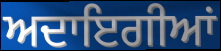
ਅਦਾਇਗੀਆਂ